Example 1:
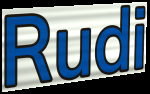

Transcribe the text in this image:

Rudi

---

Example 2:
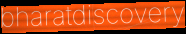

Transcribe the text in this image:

bharatdiscovery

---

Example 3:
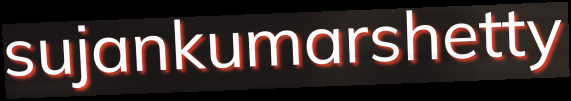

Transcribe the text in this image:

sujankumarshetty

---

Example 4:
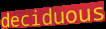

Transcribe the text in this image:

deciduous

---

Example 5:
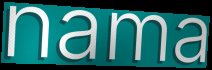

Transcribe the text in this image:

nama